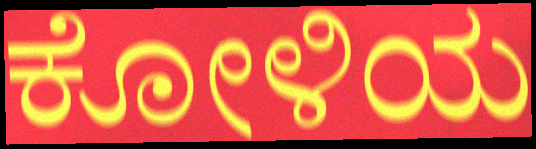
ಕೋಳಿಯ